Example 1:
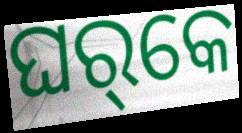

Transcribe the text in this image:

ଘର୍‌କେ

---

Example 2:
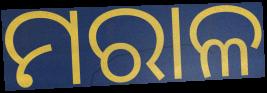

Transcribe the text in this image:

ମରାଳ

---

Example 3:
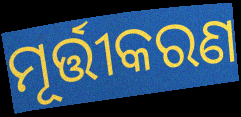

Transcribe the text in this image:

ମୂର୍ତ୍ତୀକରଣ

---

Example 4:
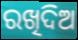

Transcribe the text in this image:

ରଖିଦିଅ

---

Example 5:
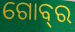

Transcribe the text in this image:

ଗୋବ୍‌ର